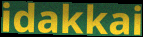
idakkai